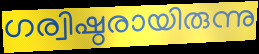
ഗര്വിഷ്ഠരായിരുന്നു